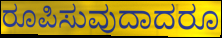
ರೂಪಿಸುವುದಾದರೂ